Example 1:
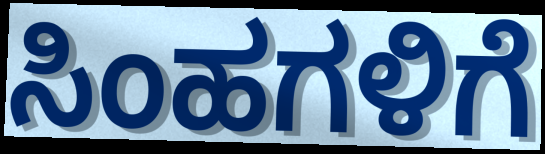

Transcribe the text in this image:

ಸಿಂಹಗಳಿಗೆ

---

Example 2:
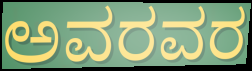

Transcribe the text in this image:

ಅವರವರ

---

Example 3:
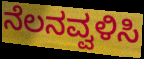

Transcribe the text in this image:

ನೆಲನವ್ವಳಿಸಿ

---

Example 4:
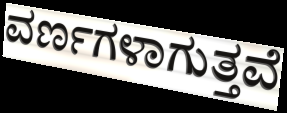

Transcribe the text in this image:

ವರ್ಣಗಳಾಗುತ್ತವೆ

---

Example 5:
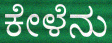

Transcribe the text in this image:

ಕೇಳೆನು